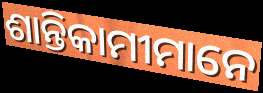
ଶାନ୍ତିକାମୀମାନେ